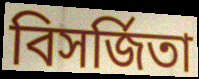
বিসর্জিতা